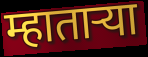
म्हातार्‍या